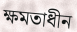
ক্ষমতাধীন